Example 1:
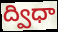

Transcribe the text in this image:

ద్విధా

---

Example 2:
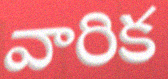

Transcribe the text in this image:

వారిక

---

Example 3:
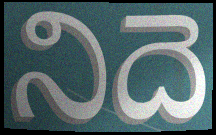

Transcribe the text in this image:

నిదె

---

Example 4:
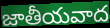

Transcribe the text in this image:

జాతీయవాద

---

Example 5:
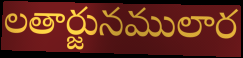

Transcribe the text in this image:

లతార్జునములార